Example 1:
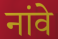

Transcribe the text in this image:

नांवे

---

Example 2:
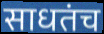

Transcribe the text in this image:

साधतंच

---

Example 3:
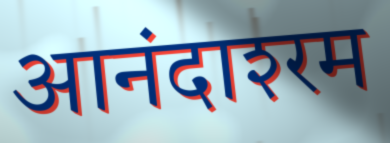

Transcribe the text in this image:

आनंदाश्रम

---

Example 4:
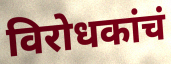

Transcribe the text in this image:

विरोधकांचं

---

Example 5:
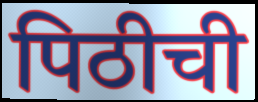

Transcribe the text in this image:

पिठीची